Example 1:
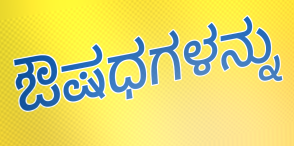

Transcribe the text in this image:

ಔಷಧಗಳನ್ನು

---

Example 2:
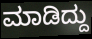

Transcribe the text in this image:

ಮಾಡಿದ್ದು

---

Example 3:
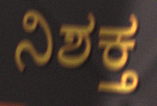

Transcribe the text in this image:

ನಿಶಕ್ತ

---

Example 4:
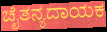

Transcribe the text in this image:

ಚೈತನ್ಯದಾಯಕ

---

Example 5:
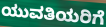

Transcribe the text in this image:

ಯುವತಿಯರಿಗೆ